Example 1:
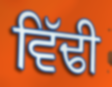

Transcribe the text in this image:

ਵਿੱਢੀ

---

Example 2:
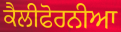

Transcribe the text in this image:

ਕੈਲੀਫੋਰਨੀਆ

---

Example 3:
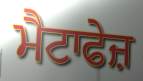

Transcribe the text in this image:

ਮੈਟਾਫੇਜ਼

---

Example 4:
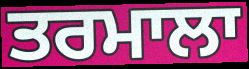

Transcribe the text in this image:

ਤਰਮਾਲਾ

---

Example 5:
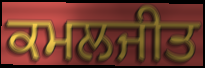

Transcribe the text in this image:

ਕਮਲਜੀਤ